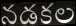
నడకల